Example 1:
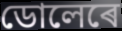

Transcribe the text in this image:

ডোলেৰে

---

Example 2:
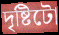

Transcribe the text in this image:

দৃষ্টিটো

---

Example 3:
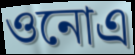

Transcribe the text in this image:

ওনোএ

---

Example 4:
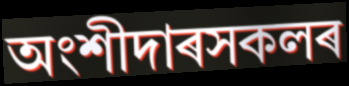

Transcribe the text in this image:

অংশীদাৰসকলৰ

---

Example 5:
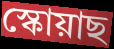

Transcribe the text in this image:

স্কোয়াছ